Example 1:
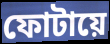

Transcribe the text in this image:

ফোটায়ে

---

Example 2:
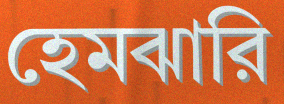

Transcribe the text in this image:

হেমঝারি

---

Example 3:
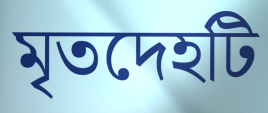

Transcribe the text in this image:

মৃতদেহটি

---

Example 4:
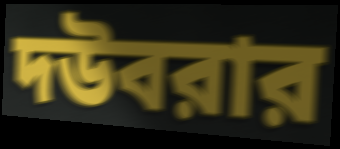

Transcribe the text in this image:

দউবরার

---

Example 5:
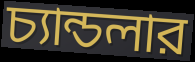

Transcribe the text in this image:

চ্যান্ডলার